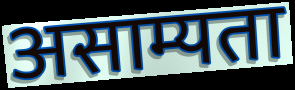
असाम्यता